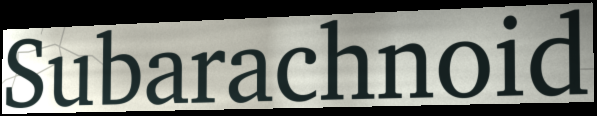
Subarachnoid